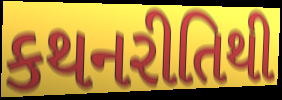
કથનરીતિથી